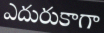
ఎదురుకాగా